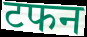
टफन